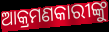
ଆକ୍ରମଣକାରୀଙ୍କୁ